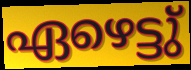
ഏഴെട്ടു്